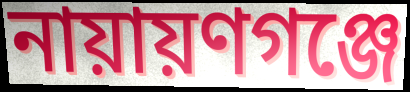
নায়ায়ণগঞ্জে